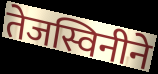
तेजस्विनीने